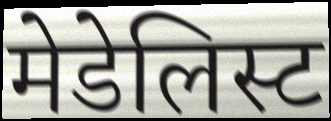
मेडेलिस्ट